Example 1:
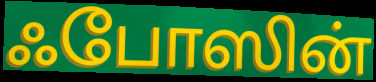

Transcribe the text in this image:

ஃபோஸின்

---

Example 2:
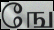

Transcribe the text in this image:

ஙே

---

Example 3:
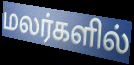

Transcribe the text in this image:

மலர்களில்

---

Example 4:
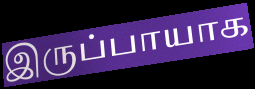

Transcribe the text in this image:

இருப்பாயாக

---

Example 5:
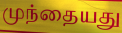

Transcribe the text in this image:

முந்தையது